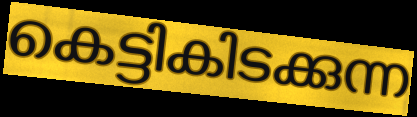
കെട്ടികിടക്കുന്ന